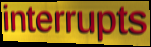
interrupts